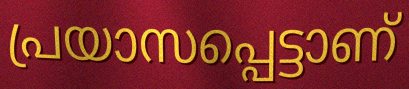
പ്രയാസപ്പെട്ടാണ്